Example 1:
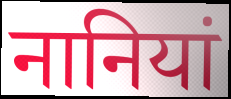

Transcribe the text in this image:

नानियां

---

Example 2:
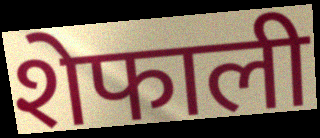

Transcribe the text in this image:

शेफाली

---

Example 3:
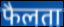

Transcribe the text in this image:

फैलता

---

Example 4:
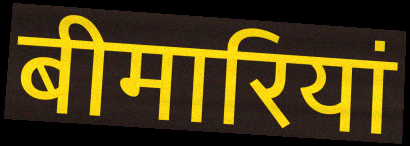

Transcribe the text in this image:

बीमारियां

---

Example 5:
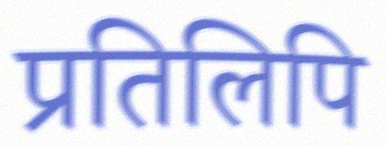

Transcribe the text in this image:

प्रतिलिपि